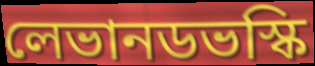
লেভানডভস্কি